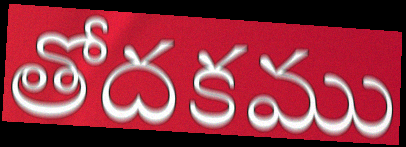
తోదకము